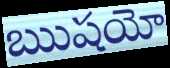
ఋషయో